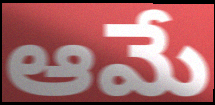
ఆమే